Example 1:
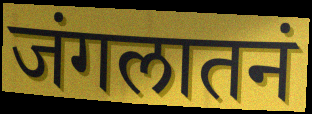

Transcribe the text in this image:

जंगलातनं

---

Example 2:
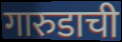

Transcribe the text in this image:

गारुडाची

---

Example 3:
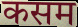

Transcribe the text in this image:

कसम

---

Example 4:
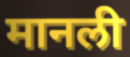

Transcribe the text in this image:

मानली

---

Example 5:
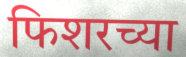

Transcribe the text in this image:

फिशरच्या